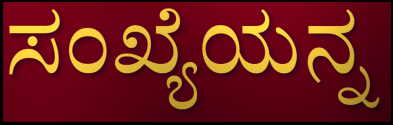
ಸಂಖ್ಯೆಯನ್ನ